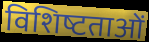
विशिष्‍टताओं